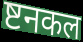
ष्टनकल